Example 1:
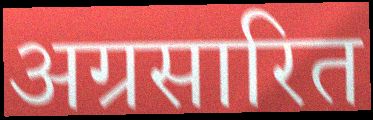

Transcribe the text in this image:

अग्रसारित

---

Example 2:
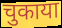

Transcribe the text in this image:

चुकाया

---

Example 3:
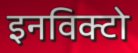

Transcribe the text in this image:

इनविक्टो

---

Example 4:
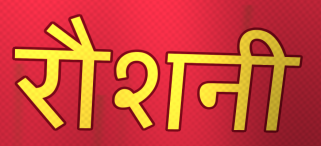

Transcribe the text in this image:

रौशनी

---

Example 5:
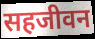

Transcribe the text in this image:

सहजीवन